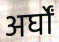
अर्घों